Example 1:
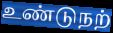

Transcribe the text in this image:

உண்டுநற்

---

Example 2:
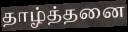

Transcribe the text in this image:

தாழ்த்தனை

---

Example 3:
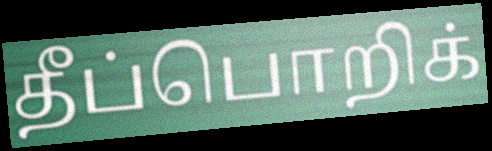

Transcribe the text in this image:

தீப்பொறிக்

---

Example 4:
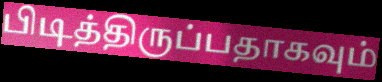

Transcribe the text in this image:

பிடித்திருப்பதாகவும்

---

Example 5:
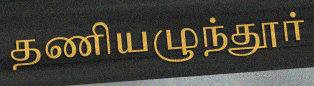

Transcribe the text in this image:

தணியழுந்தூர்